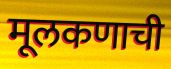
मूलकणाची